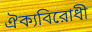
ঐক্যবিরোধী